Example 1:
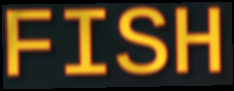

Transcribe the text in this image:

FISH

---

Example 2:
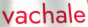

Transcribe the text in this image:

vachale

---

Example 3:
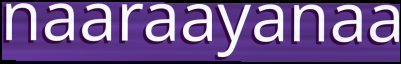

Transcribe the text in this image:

naaraayanaa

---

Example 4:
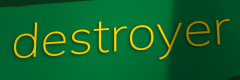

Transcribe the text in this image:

destroyer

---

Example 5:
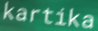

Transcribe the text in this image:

kartika